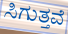
ಸಿಗುತ್ತವೆ